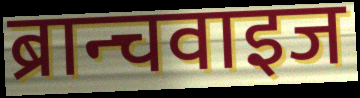
ब्रान्चवाइज